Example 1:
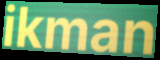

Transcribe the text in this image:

ikman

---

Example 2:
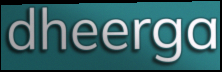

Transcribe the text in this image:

dheerga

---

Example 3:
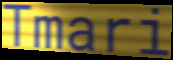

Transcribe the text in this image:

Tmari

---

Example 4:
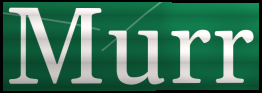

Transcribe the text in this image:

Murr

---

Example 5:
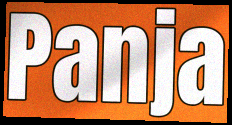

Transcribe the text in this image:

Panja